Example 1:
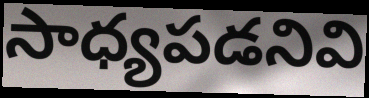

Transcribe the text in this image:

సాధ్యపడనివి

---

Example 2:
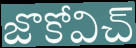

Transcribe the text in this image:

జొకోవిచ్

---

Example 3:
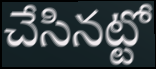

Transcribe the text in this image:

చేసినట్టో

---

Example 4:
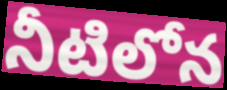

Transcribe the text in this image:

నీటిలోన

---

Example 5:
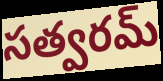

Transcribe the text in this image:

సత్వరమ్